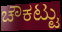
ಚೌಕಟ್ಟು